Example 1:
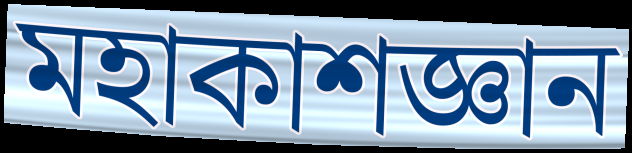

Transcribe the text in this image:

মহাকাশজ্ঞান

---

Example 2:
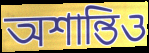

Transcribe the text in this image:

অশান্তিও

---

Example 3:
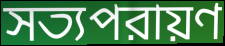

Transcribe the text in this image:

সত্যপরায়ণ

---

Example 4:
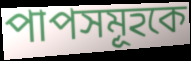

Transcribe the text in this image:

পাপসমূহকে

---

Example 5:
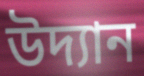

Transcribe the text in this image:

উদ্যান